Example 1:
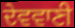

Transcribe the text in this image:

ਦੇਵਵਾਣੀ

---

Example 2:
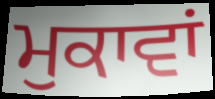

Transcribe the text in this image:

ਮੁਕਾਵਾਂ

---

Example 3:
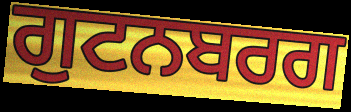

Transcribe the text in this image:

ਗੁਟਨਬਰਗ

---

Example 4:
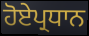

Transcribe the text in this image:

ਹੋਏਪ੍ਰਧਾਨ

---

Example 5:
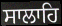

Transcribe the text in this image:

ਸਾਲਾਹਿ